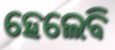
ହେଲେବି